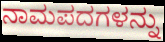
ನಾಮಪದಗಳನ್ನು